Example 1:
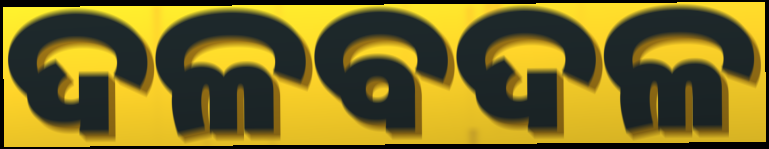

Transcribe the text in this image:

ଦଳବଦଳ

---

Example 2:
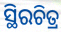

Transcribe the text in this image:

ସ୍ଥିରଚିତ୍ର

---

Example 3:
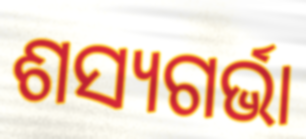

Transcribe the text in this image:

ଶସ୍ୟଗର୍ଭା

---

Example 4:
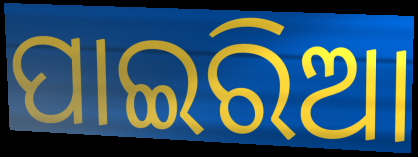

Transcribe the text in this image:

ପାଇରିଆ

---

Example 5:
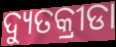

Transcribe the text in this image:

ଦ୍ୟୁତକ୍ରୀଡା